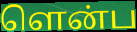
ளென்ப